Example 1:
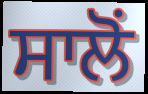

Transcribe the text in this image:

ਸਾਲੋਂ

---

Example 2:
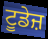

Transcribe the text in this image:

ਟੂਡੇਜ਼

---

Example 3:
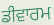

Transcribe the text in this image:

ਡੀਵਾਰਮ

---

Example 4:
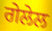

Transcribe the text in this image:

ਗੇਲੇਲ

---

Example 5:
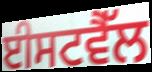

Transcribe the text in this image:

ਈਸਟਵੈੱਲ